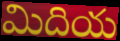
మిదియ